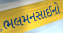
ભલમનસાઈનો